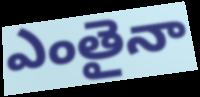
ఎంతైనా